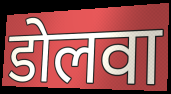
डोलवा